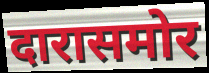
दारासमोर